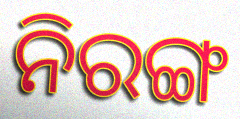
ନିରଙ୍ଗ